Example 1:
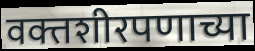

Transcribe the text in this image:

वक्तशीरपणाच्या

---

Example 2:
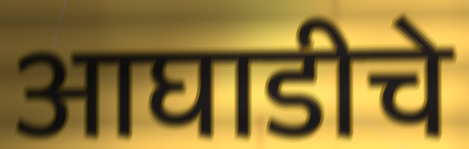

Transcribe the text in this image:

आघाडीचे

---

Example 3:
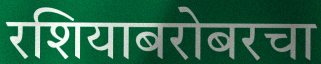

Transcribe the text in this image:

रशियाबरोबरचा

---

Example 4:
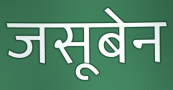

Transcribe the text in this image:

जसूबेन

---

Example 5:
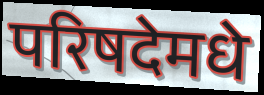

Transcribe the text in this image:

परिषदेमधे